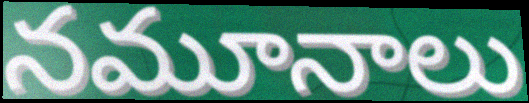
నమూనాలు